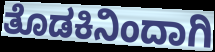
ತೊಡಕಿನಿಂದಾಗಿ